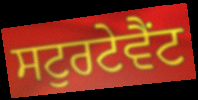
ਸਟੁਰਟੇਵੈਂਟ